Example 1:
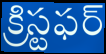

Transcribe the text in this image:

క్రిస్టఫర్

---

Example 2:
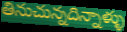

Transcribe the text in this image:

తినుచున్నదిన్నాళ్ళు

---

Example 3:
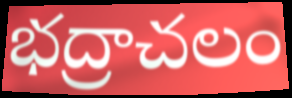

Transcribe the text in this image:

భద్రాచలం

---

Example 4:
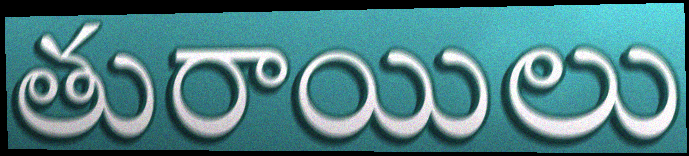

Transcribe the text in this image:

తురాయిలు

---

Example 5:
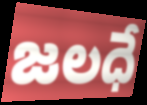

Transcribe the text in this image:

జలధే